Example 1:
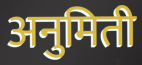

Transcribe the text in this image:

अनुमिती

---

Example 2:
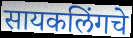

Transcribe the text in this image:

सायकलिंगचे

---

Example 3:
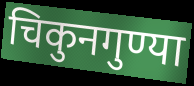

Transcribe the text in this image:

चिकुनगुण्या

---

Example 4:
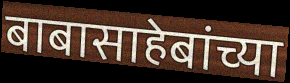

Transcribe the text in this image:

बाबासाहेबांच्‍या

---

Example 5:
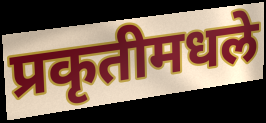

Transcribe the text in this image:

प्रकृतीमधले